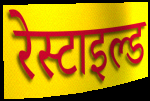
रेस्टाइल्ड